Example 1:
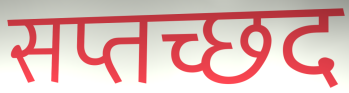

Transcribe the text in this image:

सप्तच्छद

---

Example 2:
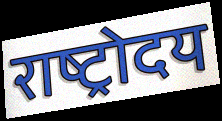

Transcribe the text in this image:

राष्ट्रोदय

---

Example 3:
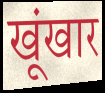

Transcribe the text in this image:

खूंखार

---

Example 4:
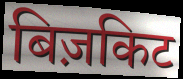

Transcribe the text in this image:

बिज़किट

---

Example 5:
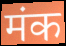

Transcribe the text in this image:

मंक